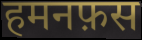
हमनफ़स